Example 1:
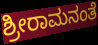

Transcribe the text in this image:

ಶ್ರೀರಾಮನಂತೆ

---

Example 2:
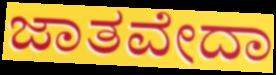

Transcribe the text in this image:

ಜಾತವೇದಾ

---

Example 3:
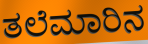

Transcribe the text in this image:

ತಲೆಮಾರಿನ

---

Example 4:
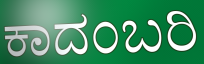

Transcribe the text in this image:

ಕಾದಂಬರಿ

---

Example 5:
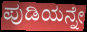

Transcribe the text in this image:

ಪುಡಿಯನ್ನೇ